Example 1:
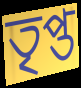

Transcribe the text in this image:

তৃপ্ত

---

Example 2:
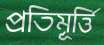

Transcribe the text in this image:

প্ৰতিমূৰ্ত্তি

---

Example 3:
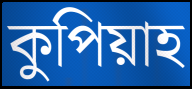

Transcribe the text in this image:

কুপিয়াহ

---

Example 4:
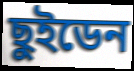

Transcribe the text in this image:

ছুইডেন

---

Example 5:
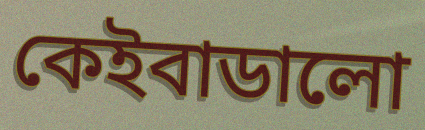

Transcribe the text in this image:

কেইবাডালো